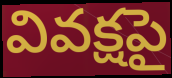
వివక్షపై